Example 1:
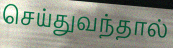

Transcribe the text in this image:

செய்துவந்தால்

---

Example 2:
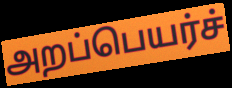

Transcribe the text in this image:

அறப்பெயர்ச்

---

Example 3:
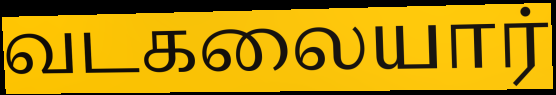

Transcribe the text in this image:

வடகலையார்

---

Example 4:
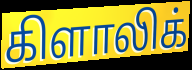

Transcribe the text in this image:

கிளாலிக்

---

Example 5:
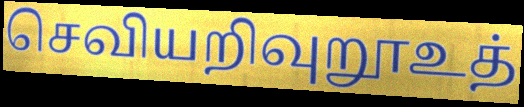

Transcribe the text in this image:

செவியறிவுறூஉத்